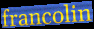
francolin